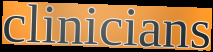
clinicians